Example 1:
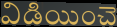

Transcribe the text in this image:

విడియించె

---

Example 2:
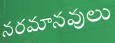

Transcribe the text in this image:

నరమానవులు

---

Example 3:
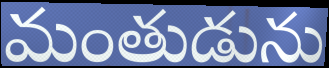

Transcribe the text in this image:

మంతుడును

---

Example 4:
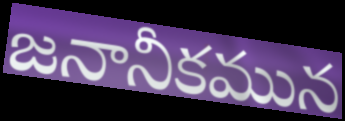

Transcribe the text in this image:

జనానీకమున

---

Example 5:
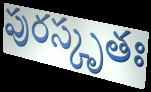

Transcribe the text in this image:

పురస్కృతః